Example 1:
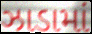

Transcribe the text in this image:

ઝાડામાં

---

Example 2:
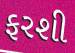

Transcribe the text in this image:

ફરશી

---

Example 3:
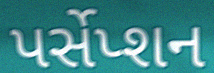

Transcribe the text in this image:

પર્સેપ્શન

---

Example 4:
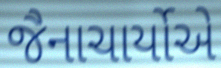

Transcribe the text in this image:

જૈનાચાર્યોએ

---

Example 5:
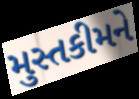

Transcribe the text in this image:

મુસ્તકીમને